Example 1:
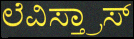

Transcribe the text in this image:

ಲೆವಿಸ್ತ್ರಾಸ್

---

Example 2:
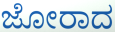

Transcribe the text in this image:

ಜೋರಾದ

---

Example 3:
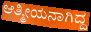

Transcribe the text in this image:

ಆತ್ಮೀಯನಾಗಿದ್ದ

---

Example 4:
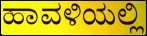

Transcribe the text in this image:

ಹಾವಳಿಯಲ್ಲಿ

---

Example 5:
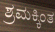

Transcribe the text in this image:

ಶ್ರಮಕ್ಕಿಂತ